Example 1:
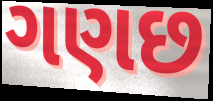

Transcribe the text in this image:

ગણછ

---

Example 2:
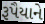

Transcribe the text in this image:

રૂપૈયાને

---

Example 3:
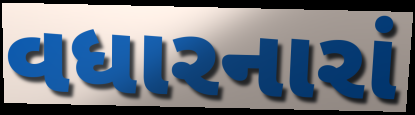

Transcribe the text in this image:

વધારનારાં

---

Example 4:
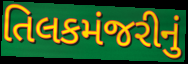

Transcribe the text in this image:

તિલકમંજરીનું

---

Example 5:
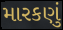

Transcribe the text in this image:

મારકણું